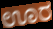
ಊರ